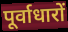
पूर्वाधारों